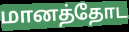
மானத்தோட